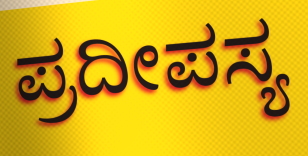
ಪ್ರದೀಪಸ್ಯ